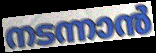
നടന്നാൻ